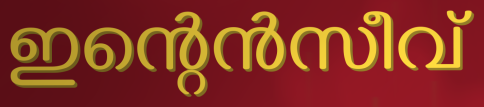
ഇന്റെൻസീവ്